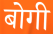
बोगी